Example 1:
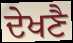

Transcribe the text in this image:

ਦੇਖਣੈ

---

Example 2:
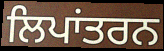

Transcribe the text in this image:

ਲਿਪਾਂਤਰਨ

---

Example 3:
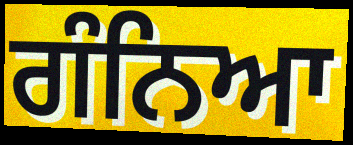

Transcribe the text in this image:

ਗੰਨਿਆ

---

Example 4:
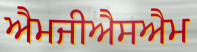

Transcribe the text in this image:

ਐਮਜੀਐਸਐਮ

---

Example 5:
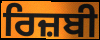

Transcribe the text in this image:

ਰਿਜ਼ਬੀ